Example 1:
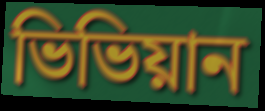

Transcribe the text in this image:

ভিভিয়ান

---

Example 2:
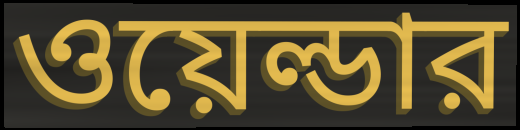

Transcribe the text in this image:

ওয়েল্ডার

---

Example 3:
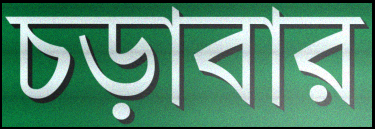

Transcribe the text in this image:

চড়াবার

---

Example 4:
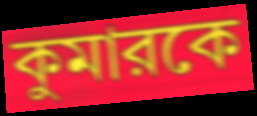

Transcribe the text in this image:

কুমারকে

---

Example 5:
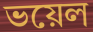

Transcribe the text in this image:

ভয়েল